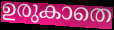
ഉരുകാതെ